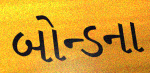
બોન્ડના